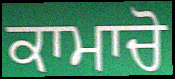
ਕਾਮਾਚੋ